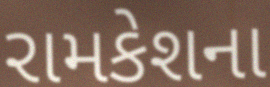
રામકેશના